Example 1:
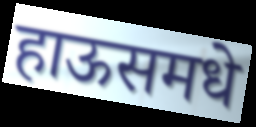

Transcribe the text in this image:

हाऊसमधे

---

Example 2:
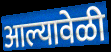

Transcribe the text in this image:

आल्यावेळी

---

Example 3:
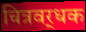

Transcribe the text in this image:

चित्रवर्धक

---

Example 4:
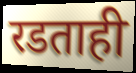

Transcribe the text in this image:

रडताही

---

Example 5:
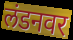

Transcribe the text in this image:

लंडनवर